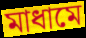
মাধামে